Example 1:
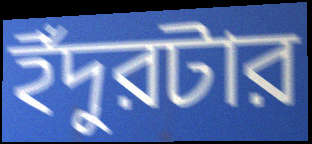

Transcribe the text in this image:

ইঁদুরটার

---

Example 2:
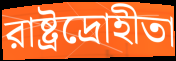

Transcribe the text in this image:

রাষ্ট্রদ্রোহীতা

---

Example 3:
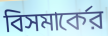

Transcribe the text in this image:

বিসমার্কের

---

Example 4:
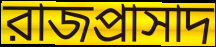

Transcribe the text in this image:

রাজপ্রাসাদ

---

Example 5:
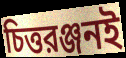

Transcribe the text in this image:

চিত্তরঞ্জনই